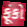
ફૂંકો